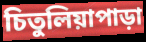
চিতুলিয়াপাড়া